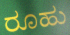
ರೂಹು